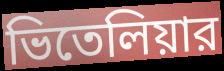
ভিতেলিয়ার